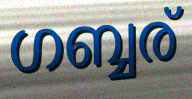
ഗബ്ബര്